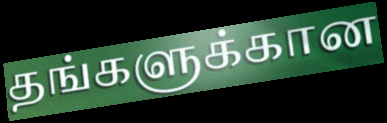
தங்களுக்கான